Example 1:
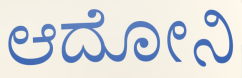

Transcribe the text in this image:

ಆದೋನಿ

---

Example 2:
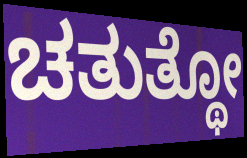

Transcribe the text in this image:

ಚತುತ್ಥೋ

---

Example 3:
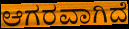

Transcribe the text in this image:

ಆಗರವಾಗಿದೆ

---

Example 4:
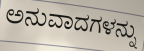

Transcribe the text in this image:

ಅನುವಾದಗಳನ್ನು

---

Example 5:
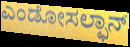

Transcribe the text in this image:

ಎಂಡೋಸಲ್ಫಾನ್